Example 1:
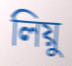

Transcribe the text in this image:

লিয়ু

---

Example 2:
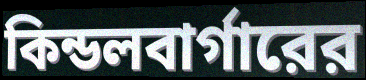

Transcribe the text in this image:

কিন্ডলবার্গারের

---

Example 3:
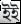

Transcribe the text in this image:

ইই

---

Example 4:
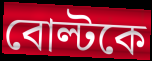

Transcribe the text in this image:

বোল্টকে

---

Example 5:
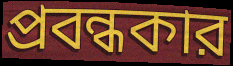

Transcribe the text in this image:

প্রবন্ধকার